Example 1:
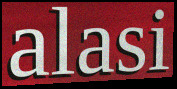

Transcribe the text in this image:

alasi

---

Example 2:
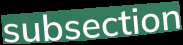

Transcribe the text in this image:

subsection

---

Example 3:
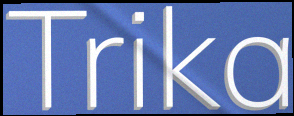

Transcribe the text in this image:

Trika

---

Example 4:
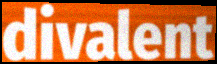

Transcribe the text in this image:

divalent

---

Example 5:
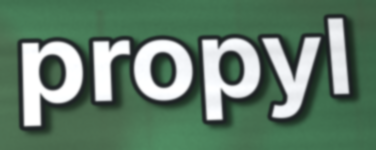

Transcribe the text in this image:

propyl